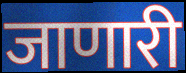
जाणारी